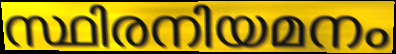
സ്ഥിരനിയമനം